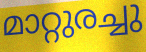
മാറ്റുരച്ചു